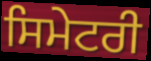
ਸਿਮੇਟਰੀ